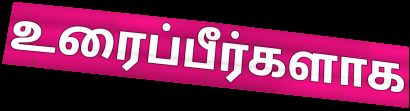
உரைப்பீர்களாக